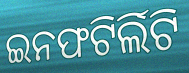
ଇନଫଟିର୍ଲିଟି